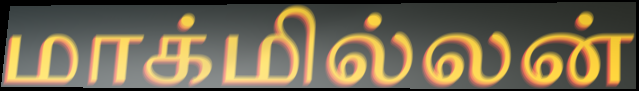
மாக்மில்லன்